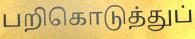
பறிகொடுத்துப்